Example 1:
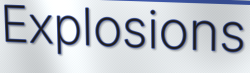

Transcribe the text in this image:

Explosions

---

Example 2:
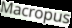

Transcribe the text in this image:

Macropus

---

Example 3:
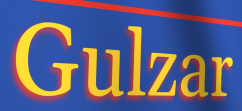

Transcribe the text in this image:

Gulzar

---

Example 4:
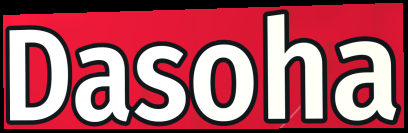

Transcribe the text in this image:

Dasoha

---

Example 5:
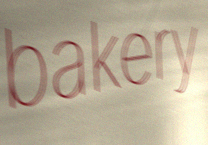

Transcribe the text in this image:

bakery